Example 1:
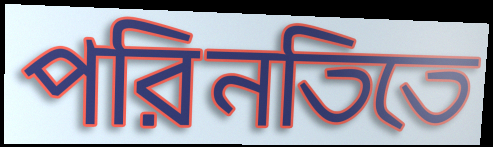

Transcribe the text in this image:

পরিনতিতে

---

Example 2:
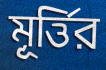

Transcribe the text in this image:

মূর্ত্তির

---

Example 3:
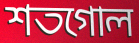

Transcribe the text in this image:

শতগোল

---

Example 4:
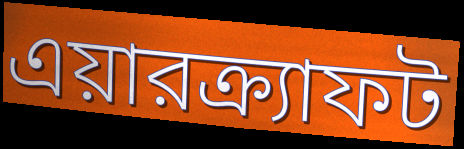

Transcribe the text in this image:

এয়ারক্র্যাফট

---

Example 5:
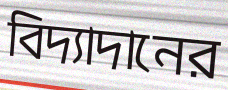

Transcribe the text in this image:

বিদ্যাদানের